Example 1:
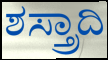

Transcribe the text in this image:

ಶಸ್ತ್ರಾದಿ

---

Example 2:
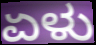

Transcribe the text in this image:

ಏಳು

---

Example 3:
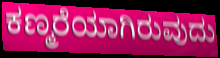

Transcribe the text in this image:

ಕಣ್ಮರೆಯಾಗಿರುವುದು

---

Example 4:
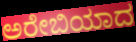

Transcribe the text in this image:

ಅರೇಬಿಯಾದ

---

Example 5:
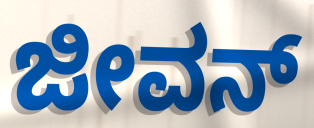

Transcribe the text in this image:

ಜೀವನ್